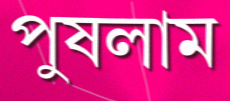
পুষলাম